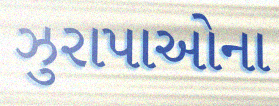
ઝુરાપાઓના